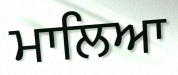
ਮਾਲਿਆ